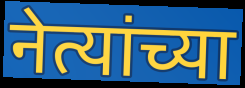
नेत्यांच्या